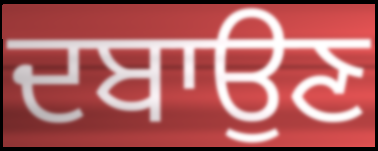
ਦਬਾਉਣ